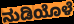
ನುಡಿಯೊಳೆ